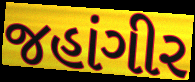
જહાંગીર